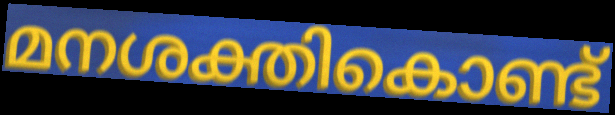
മനശക്തികൊണ്ട്